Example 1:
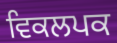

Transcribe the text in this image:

ਵਿਕਲਪਕ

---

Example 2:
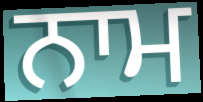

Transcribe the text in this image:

ਨਾਮ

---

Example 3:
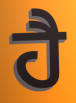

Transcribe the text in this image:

ਹੈ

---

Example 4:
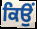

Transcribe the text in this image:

ਕਿਉਂ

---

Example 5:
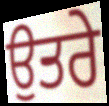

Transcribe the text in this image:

ਉਤਰੇ